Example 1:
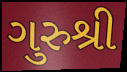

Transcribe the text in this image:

ગુરુશ્રી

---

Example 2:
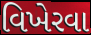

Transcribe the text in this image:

વિખેરવા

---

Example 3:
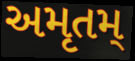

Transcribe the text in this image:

અમૃતમ્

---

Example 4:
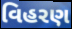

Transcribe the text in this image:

વિહરણ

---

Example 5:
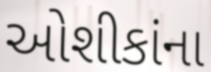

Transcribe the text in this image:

ઓશીકાંના